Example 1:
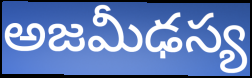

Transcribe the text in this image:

అజమీఢస్య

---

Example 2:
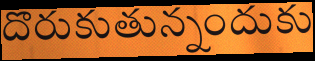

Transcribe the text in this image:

దొరుకుతున్నందుకు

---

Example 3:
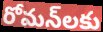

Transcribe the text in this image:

రోమన్‌లకు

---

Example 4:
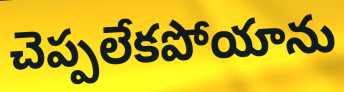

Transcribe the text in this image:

చెప్పలేకపోయాను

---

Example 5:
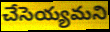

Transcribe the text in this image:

చేసెయ్యమని